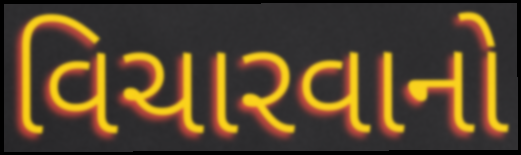
વિચારવાનો